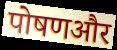
पोषणऔर